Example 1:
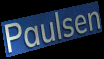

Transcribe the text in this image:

Paulsen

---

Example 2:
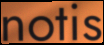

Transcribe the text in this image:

notis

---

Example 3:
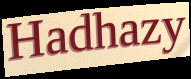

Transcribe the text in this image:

Hadhazy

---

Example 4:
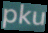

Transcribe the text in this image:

pku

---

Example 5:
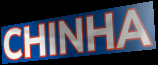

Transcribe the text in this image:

CHINHA